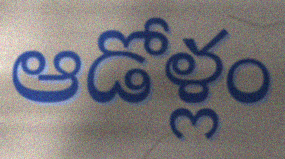
ఆడోళ్లం